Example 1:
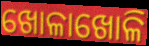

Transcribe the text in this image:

ଖୋଳାଖୋଳି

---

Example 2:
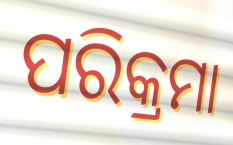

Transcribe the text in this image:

ପରିକ୍ରମା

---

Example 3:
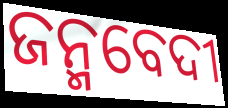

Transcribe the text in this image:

ଜନ୍ମବେଦୀ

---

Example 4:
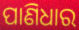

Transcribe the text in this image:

ପାଣିଧାର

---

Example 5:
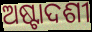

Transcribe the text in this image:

ଅଷ୍ଟାଦଶୀ